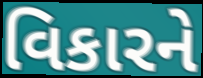
વિકારને